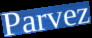
Parvez